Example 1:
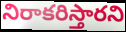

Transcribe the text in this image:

నిరాకరిస్తారని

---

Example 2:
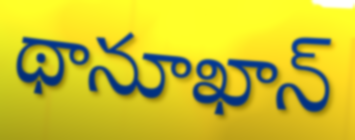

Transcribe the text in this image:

థానూఖాన్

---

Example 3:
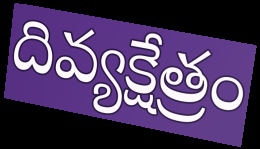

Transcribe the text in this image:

దివ్యక్షేత్రం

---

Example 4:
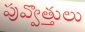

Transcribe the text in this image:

పువ్వొత్తులు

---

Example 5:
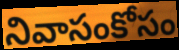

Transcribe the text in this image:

నివాసంకోసం